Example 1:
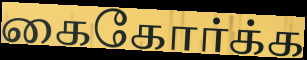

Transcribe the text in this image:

கைகோர்க்க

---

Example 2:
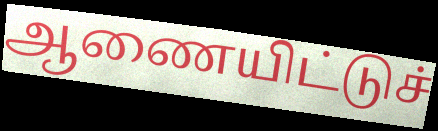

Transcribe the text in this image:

ஆணையிட்டுச்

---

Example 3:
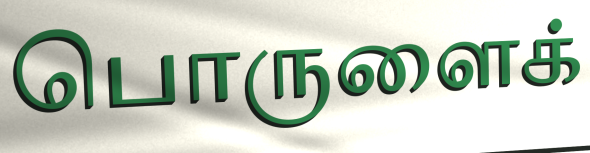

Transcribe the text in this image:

பொருளைக்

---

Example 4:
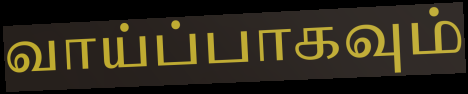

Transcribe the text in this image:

வாய்ப்பாகவும்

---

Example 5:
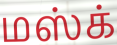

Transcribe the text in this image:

மஸ்க்